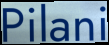
Pilani